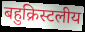
बहुक्रिस्टलीय